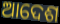
ଆଦେଶ